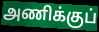
அணிக்குப்